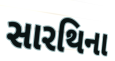
સારથિના